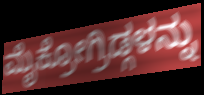
ಮೈಕ್ರೋಗ್ರಿಡ್ಗಳನ್ನು